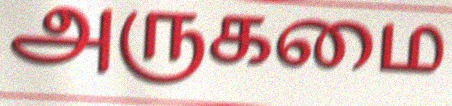
அருகமை